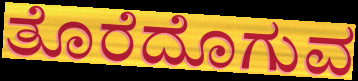
ತೊರೆದೊಗುವ